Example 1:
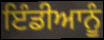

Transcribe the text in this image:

ਇੰਡੀਆਨੂੰ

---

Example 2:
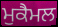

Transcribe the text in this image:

ਮੁਕੈਮਲ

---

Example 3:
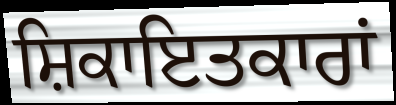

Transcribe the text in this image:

ਸ਼ਿਕਾਇਤਕਾਰਾਂ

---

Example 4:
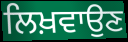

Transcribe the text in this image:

ਲਿਖ਼ਵਾਉਣ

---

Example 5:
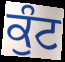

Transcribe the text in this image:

ਕੁੰਟ